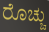
ರೊಚ್ಚು